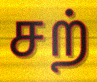
சற்